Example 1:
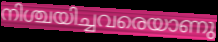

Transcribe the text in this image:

നിശ്ചയിച്ചവരെയാണു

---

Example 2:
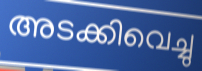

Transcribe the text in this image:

അടക്കിവെച്ചു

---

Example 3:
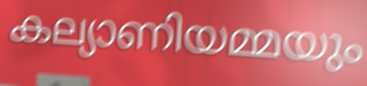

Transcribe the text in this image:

കല്യാണിയമ്മയും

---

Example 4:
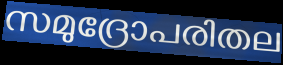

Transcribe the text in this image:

സമുദ്രോപരിതല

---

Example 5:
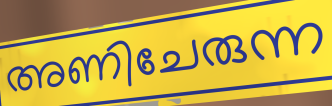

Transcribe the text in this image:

അണിചേരുന്ന